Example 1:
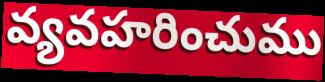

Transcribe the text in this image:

వ్యవహరించుము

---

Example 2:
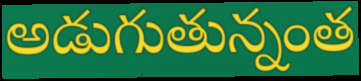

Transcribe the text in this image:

అడుగుతున్నంత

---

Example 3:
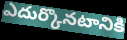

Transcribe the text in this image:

ఎదుర్కొనటానికి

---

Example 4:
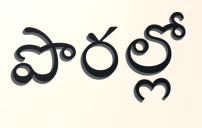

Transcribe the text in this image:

పొరల్లో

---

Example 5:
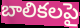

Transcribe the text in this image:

బాలికలపై